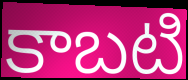
కాబటి